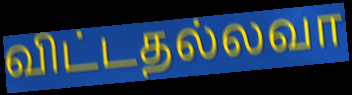
விட்டதல்லவா